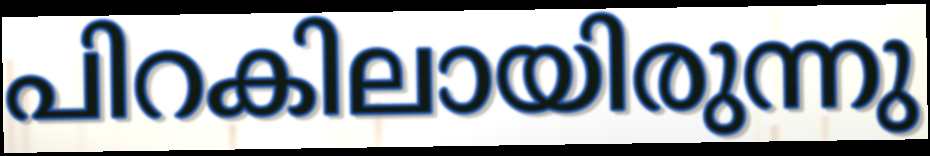
പിറകിലായിരുന്നു